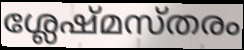
ശ്ലേഷ്മസ്തരം